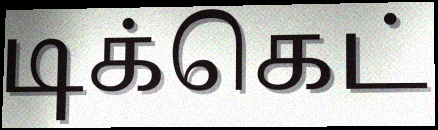
டிக்கெட்